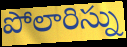
పోలారిస్ను